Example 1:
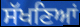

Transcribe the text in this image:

ਸੱਖਣਿਆਂ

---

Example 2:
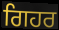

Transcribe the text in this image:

ਗਿਹਰ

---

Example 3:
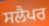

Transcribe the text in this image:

ਸਲੈਪਰ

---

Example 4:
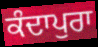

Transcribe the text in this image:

ਕੰਦਾਪੁਰਾ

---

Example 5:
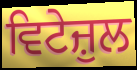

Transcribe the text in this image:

ਵਿਟੇਜ਼ੁਲ